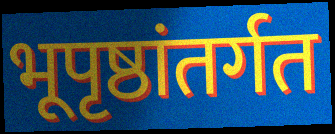
भूपृष्ठांतर्गत